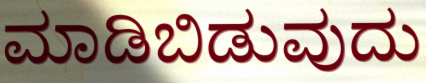
ಮಾಡಿಬಿಡುವುದು